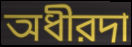
অধীরদা